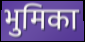
भुमिका